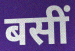
बसीं